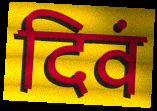
दिवं